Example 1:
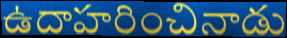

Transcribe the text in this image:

ఉదాహరించినాడు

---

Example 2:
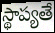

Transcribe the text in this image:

స్థాప్యతే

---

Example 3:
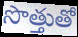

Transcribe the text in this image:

సొత్తుతో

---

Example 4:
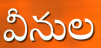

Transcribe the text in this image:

వీనుల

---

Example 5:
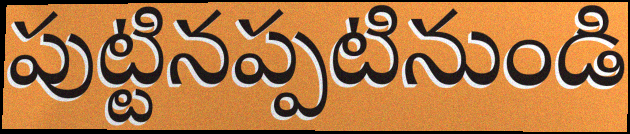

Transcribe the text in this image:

పుట్టినప్పటినుండి